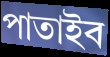
পাতাইব